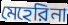
মেহেরিনা